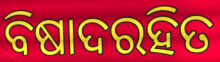
ବିଷାଦରହିତ